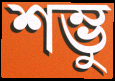
শম্ভু